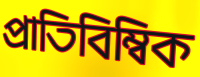
প্রাতিবিম্বিক